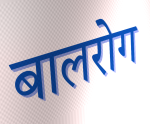
बालरोग